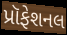
પ્રૉફેશનલ